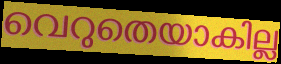
വെറുതെയാകില്ല